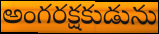
అంగరక్షకుడును